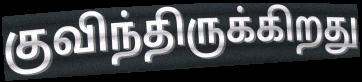
குவிந்திருக்கிறது